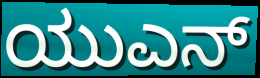
ಯುಎನ್